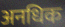
अनधिक